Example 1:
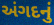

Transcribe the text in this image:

અંગદનું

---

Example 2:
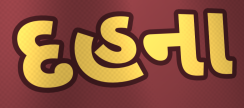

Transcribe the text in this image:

દહના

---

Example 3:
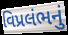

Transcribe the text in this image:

વિપ્રલંભનું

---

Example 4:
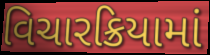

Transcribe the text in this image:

વિચારક્રિયામાં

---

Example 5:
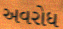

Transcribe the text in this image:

અવરોધ